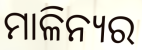
ମାଳିନ୍ୟର